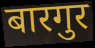
बारगुर